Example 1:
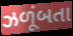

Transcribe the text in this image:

ઝળૂંબતા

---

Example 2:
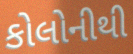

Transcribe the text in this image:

કોલોનીથી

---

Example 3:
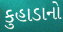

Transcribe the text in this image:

કુહાડાનો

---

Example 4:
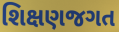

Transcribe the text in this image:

શિક્ષણજગત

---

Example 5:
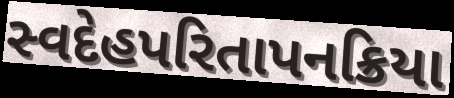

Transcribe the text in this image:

સ્વદેહપરિતાપનક્રિયા